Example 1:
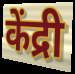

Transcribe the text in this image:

केंद्री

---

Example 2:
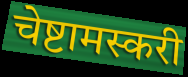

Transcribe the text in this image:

चेष्टामस्करी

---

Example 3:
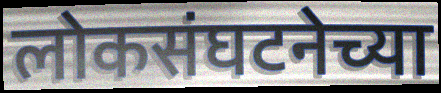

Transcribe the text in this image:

लोकसंघटनेच्या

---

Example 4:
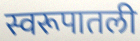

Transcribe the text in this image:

स्वरूपातली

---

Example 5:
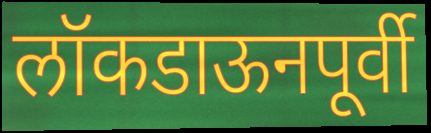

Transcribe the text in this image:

लॉकडाऊनपूर्वी